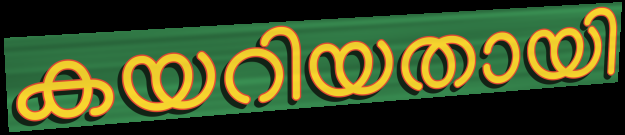
കയറിയതായി